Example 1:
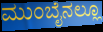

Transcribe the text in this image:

ಮುಂಬೈನಲ್ಲೂ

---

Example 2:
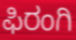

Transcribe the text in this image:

ಫಿರಂಗಿ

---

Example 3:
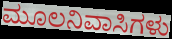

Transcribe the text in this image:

ಮೂಲನಿವಾಸಿಗಳು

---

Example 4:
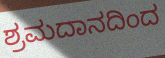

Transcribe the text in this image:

ಶ್ರಮದಾನದಿಂದ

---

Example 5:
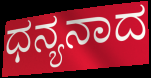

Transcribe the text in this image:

ಧನ್ಯನಾದ